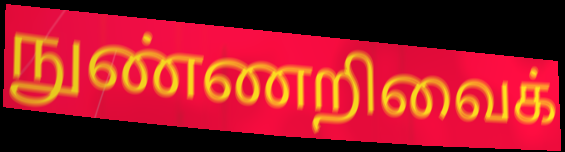
நுண்ணறிவைக்